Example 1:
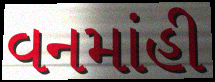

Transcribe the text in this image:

વનમાંહી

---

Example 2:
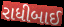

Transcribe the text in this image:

રાધીબાઈ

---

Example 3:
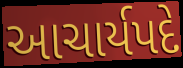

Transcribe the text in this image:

આચાર્યપદે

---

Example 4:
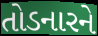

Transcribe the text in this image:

તોડનારને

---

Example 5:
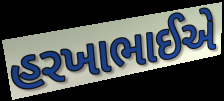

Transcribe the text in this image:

હરખાભાઈએ